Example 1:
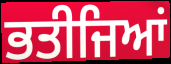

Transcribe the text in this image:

ਭਤੀਜਿਆਂ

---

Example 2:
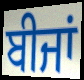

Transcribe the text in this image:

ਬੀਜਾਂ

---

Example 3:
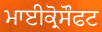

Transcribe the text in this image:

ਮਾਈਕ੍ਰੋਸੌਫਟ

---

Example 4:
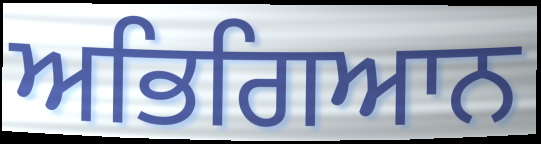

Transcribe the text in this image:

ਅਭਿਗਿਆਨ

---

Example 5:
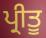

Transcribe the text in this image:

ਪ੍ਰੀਤੂ